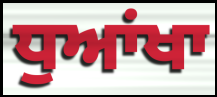
ਧੁਆਂਖਾ